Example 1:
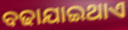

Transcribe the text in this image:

ବଢାଯାଇଥାଏ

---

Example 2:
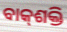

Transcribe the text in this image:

ବାକ୍‌ଶକ୍ତି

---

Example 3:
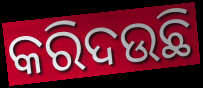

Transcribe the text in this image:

କରିଦଉଛି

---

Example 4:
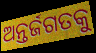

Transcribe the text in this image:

ଅନ୍ତର୍ଜଗତକୁ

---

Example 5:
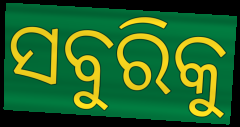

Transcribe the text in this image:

ସବୁରିକୁ